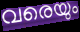
വരെയും